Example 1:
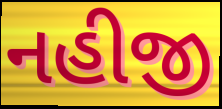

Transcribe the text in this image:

નહીજી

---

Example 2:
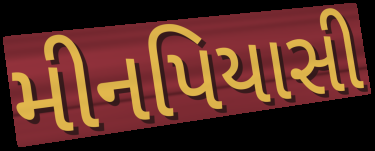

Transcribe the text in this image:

મીનપિયાસી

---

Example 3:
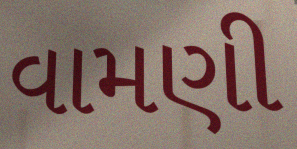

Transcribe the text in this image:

વામણી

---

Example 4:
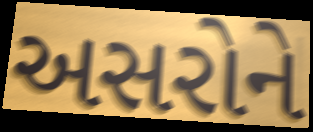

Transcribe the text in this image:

અસરોને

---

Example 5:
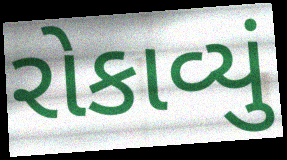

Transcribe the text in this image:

રોકાવ્યું